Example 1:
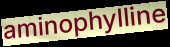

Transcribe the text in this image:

aminophylline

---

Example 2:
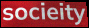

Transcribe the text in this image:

socieity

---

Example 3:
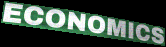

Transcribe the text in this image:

ECONOMICS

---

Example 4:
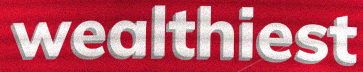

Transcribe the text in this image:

wealthiest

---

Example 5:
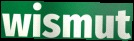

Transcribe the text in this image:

wismut